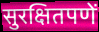
सुरक्षितपणें